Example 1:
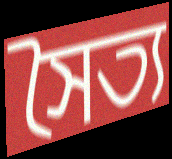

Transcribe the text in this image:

সৈত্য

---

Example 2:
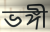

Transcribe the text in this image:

ভঙ্গী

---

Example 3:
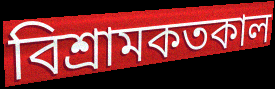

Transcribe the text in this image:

বিশ্রামকতকাল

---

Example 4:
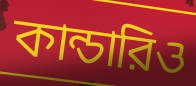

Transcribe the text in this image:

কান্ডারিও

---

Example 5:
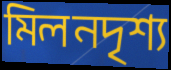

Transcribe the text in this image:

মিলনদৃশ্য